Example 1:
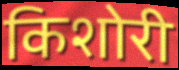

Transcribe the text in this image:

किशोरी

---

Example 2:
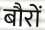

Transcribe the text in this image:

बौरों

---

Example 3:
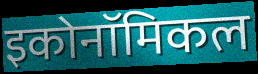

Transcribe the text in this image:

इकोनॉमिकल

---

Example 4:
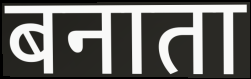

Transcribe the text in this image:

बनाता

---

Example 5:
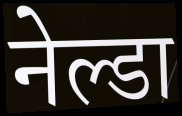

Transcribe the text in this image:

नेल्डा